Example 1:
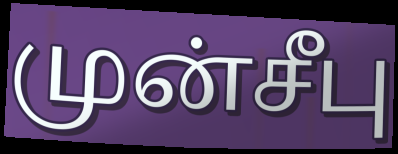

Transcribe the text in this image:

முன்சீபு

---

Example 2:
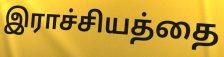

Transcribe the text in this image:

இராச்சியத்தை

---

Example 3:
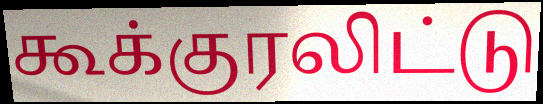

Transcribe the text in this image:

கூக்குரலிட்டு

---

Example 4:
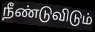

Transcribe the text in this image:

நீண்டுவிடும்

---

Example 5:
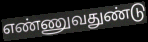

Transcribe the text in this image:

எண்ணுவதுண்டு